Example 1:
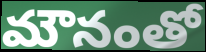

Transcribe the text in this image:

మౌనంతో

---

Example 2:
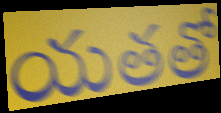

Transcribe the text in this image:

యతతో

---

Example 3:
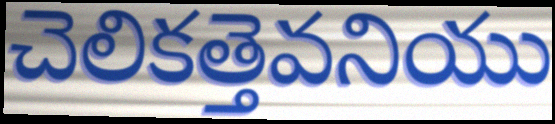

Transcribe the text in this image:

చెలికత్తెవనియు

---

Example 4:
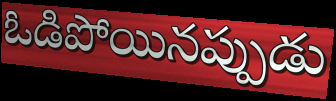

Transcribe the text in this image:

ఓడిపోయినప్పుడు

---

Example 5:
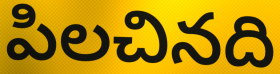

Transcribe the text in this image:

పిలచినది